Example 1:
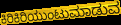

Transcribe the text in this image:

ಕಿರಿಕಿರಿಯುಂಟುಮಾಡುವ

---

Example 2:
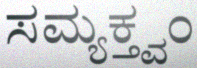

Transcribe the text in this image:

ಸಮ್ಯಕ್ತ್ವಂ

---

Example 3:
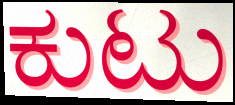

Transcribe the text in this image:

ಕುಟು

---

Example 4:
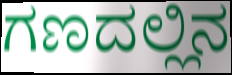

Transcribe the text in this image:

ಗಣದಲ್ಲಿನ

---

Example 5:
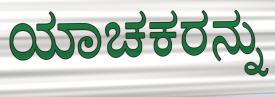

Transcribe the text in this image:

ಯಾಚಕರನ್ನು